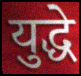
युद्धे